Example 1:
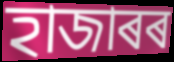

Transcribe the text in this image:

হাজাৰৰ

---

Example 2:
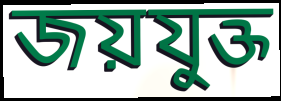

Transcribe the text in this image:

জয়যুক্ত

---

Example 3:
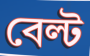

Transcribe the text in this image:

বেল্ট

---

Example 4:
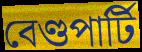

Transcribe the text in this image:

বেণ্ডপাৰ্টি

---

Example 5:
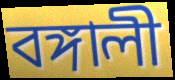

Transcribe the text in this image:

বঙ্গালী